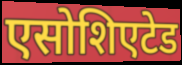
एसोशिएटेड